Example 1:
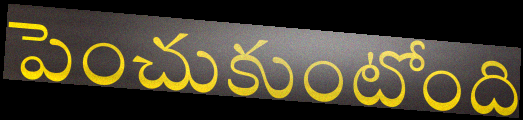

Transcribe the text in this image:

పెంచుకుంటోంది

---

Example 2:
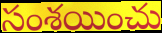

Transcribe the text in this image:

సంశయించు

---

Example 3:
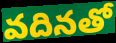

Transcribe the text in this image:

వదినతో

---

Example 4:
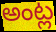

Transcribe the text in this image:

అంట్ల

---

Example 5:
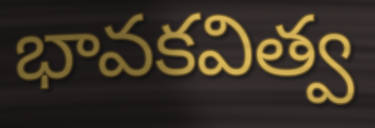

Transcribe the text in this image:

భావకవిత్వ